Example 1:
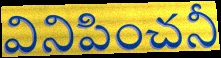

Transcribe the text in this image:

వినిపించనీ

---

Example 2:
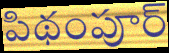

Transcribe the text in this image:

పిథంపూర్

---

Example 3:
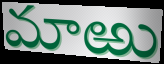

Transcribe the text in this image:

మాఱు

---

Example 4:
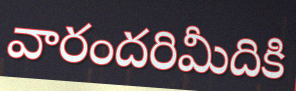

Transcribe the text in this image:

వారందరిమీదికి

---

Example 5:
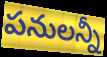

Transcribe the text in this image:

పనులన్నీ